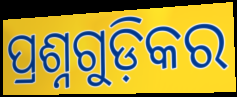
ପ୍ରଶ୍ନଗୁଡ଼ିକର